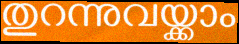
തുറന്നുവയ്ക്കാം